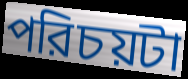
পরিচয়টা